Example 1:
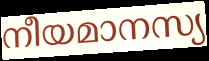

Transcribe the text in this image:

നീയമാനസ്യ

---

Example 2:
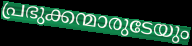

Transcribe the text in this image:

പ്രഭുക്കന്മാരുടേയും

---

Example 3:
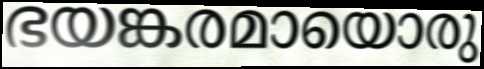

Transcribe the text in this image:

ഭയങ്കരമായൊരു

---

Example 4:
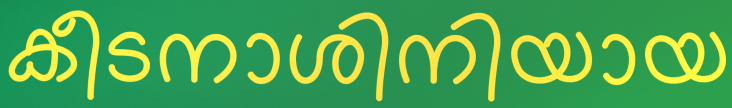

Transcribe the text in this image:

കീടനാശിനിയായ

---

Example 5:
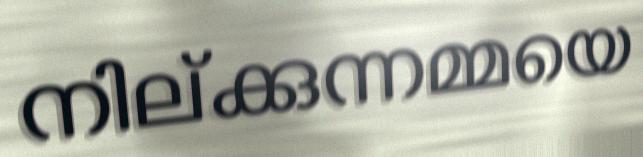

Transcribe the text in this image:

നില്ക്കുന്നമ്മയെ